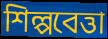
শিল্পবেত্তা